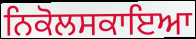
ਨਿਕੋਲਸਕਾਇਆ